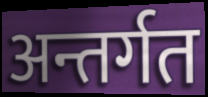
अन्‍तर्गत